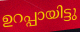
ഉറപ്പായിട്ടു